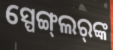
ସ୍ପେଙ୍ଗ୍‌ଲର୍‌ଙ୍କ